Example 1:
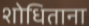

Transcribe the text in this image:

शोधिताना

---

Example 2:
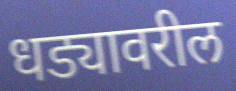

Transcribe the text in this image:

धड्यावरील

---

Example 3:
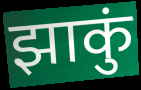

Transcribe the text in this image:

झाकुं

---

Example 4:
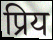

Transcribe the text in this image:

प्रिय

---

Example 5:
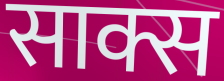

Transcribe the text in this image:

साक्स